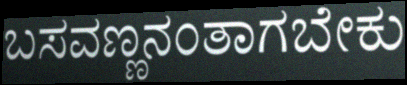
ಬಸವಣ್ಣನಂತಾಗಬೇಕು